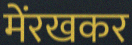
मेंरखकर